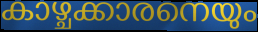
കാഴ്ചക്കാരനെയും